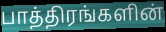
பாத்திரங்களின்